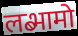
लब्भामो